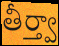
తీర్త్వా